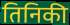
तिनिकी